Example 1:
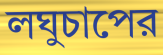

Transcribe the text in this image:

লঘুচাপের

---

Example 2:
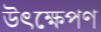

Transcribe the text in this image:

উৎক্ষেপণ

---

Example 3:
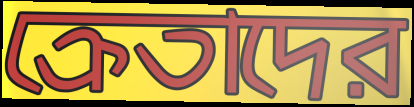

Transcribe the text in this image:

ক্রেতাদের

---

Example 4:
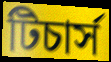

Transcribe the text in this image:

টিচার্স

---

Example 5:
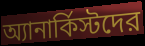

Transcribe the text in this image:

অ্যানার্কিস্টদের